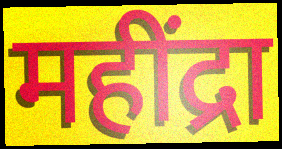
महींद्रा